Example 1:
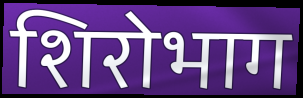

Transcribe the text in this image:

शिरोभाग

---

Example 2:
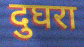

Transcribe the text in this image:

दुघरा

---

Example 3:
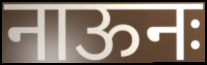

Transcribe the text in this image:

नाऊनः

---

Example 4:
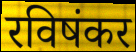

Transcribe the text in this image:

रविषंकर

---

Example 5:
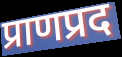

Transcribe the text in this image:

प्राणप्रद